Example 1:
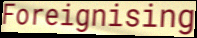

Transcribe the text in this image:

Foreignising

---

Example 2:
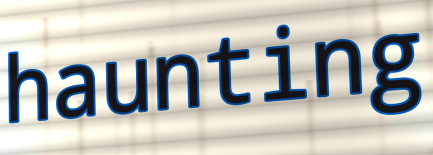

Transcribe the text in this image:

haunting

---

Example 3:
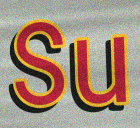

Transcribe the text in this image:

Su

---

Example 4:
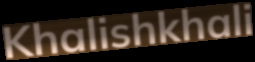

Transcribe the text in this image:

Khalishkhali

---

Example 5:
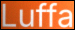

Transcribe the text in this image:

Luffa